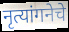
नृत्यांगनेचे